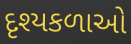
દૃશ્યકળાઓ